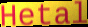
Hetal